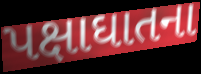
પક્ષાઘાતના